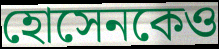
হোসেনকেও